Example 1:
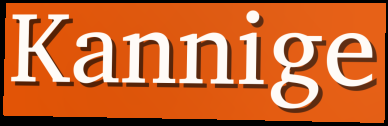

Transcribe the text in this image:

Kannige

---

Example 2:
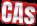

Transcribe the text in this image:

CAs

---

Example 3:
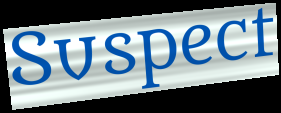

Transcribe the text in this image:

Suspect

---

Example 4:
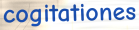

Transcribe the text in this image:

cogitationes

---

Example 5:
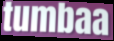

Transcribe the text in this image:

tumbaa